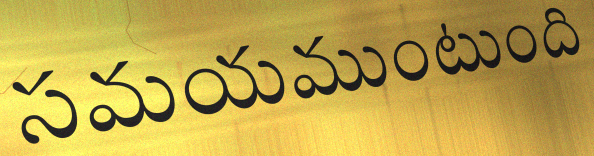
సమయముంటుంది